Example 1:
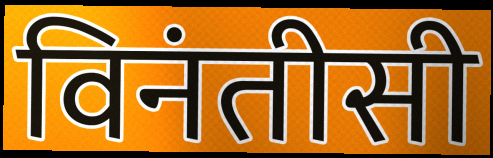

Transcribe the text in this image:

विनंतीसी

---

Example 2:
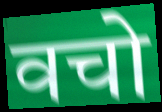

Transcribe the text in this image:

वचो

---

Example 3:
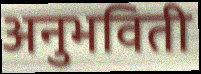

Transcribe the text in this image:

अनुभविती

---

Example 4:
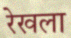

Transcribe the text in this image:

रेखला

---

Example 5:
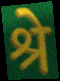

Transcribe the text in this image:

श्रे